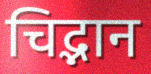
चिद्भान